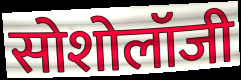
सोशोलॉजी